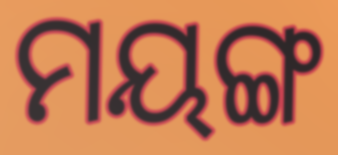
ମୟଙ୍ଗ